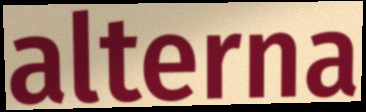
alterna